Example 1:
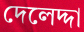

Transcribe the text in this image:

দেলেদ্দা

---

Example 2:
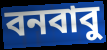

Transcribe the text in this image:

বনবাবু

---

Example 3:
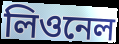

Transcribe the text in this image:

লিওনেল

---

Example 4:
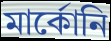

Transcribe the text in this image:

মার্কোনি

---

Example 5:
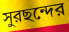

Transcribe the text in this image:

সুরছন্দের